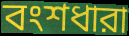
বংশধারা